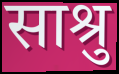
साश्रु